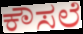
ಕೌಸಲೆ